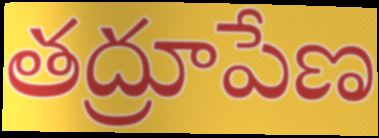
తద్రూపేణ